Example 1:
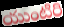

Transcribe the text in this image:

యుంటిరి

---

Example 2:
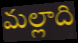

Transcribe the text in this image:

మల్లాది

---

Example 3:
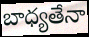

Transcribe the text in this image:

బాధ్యతేనా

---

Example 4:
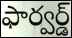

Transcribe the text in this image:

ఫార్వర్డ్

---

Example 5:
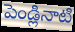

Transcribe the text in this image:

పెండ్లినాటి